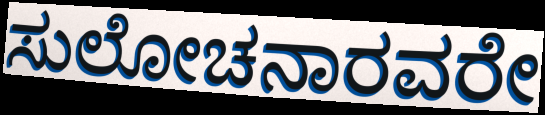
ಸುಲೋಚನಾರವರೇ